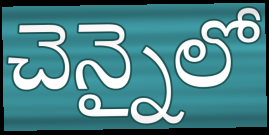
చెన్నైలో